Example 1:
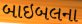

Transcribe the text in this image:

બાઇબલના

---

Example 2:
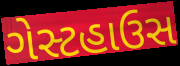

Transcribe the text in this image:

ગેસ્ટહાઉસ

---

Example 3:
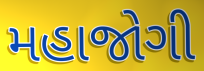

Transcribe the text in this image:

મહાજોગી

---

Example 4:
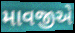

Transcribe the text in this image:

માવજીએ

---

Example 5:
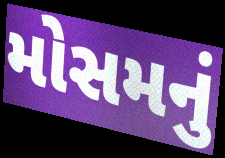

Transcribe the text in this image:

મોસમનું